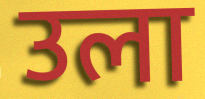
उला